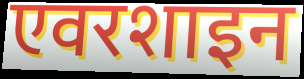
एवरशाइन